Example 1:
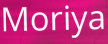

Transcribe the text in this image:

Moriya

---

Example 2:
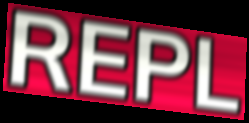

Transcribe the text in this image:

REPL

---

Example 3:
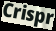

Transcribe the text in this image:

Crispr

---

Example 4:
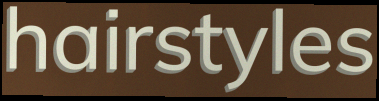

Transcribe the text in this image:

hairstyles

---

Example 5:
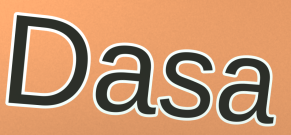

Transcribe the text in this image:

Dasa